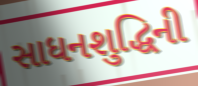
સાધનશુદ્ધિની